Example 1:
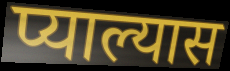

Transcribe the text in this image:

प्याल्यास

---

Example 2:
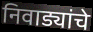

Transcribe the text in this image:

निवाड्यांचे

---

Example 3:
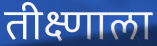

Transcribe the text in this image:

तीक्ष्णाला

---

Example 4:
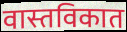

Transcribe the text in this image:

वास्तविकात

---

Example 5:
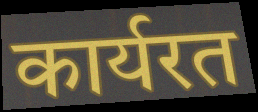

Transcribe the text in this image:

कार्यरत